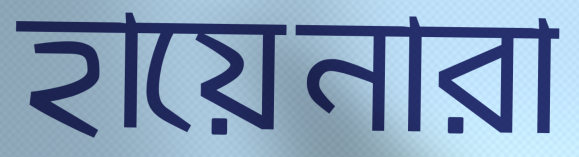
হায়েনারা